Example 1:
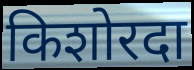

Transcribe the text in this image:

किशोरदा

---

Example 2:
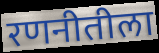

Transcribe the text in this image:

रणनीतीला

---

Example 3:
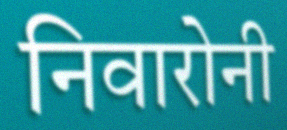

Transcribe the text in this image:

निवारोनी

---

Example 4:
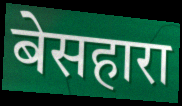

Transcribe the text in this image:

बेसहारा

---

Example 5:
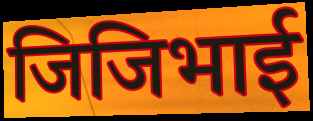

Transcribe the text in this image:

जिजिभाई